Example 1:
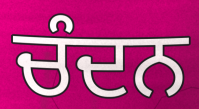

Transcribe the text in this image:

ਚੰਦਨ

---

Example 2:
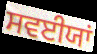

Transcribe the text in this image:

ਸਵਈਯਾਂ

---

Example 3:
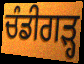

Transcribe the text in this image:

ਚੰਡੀਗਡ਼੍ਹ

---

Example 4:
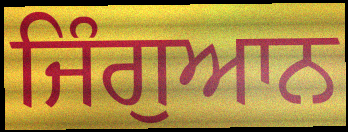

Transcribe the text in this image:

ਜਿੰਗੁਆਨ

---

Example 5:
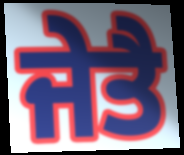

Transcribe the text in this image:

ਜੇਤੈ